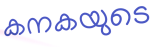
കനകയുടെ